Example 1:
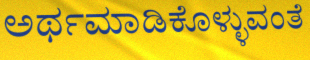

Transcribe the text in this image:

ಅರ್ಥಮಾಡಿಕೊಳ್ಳುವಂತೆ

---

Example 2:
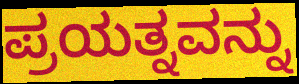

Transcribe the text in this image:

ಪ್ರಯತ್ನವನ್ನು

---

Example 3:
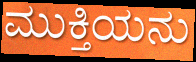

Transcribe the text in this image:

ಮುಕ್ತಿಯನು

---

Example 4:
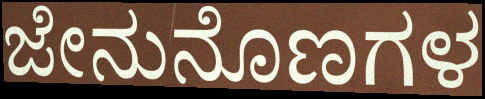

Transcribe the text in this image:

ಜೇನುನೊಣಗಳ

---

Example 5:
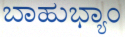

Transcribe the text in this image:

ಬಾಹುಭ್ಯಾಂ